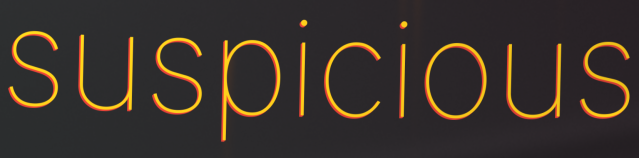
suspicious